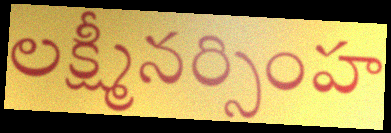
లక్ష్మీనర్సింహ